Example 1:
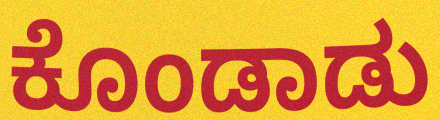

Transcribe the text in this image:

ಕೊಂಡಾಡು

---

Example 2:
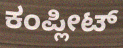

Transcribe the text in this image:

ಕಂಪ್ಲೀಟ್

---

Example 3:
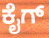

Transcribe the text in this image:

ಕೈಗ್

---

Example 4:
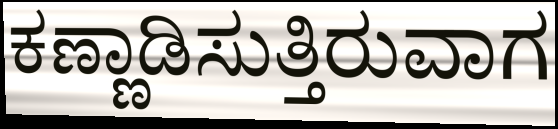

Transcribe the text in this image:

ಕಣ್ಣಾಡಿಸುತ್ತಿರುವಾಗ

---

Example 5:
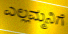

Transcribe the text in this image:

ಎಲ್ಲಮ್ಮನಿಗೆ